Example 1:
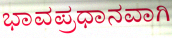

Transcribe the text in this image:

ಭಾವಪ್ರಧಾನವಾಗಿ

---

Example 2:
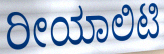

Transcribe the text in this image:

ರೀಯಾಲಿಟಿ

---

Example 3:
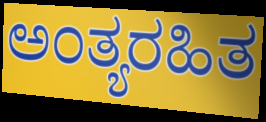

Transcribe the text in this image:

ಅಂತ್ಯರಹಿತ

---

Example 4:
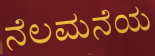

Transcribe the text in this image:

ನೆಲಮನೆಯ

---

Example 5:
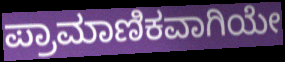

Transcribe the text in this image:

ಪ್ರಾಮಾಣಿಕವಾಗಿಯೇ